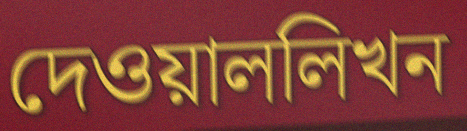
দেওয়াললিখন